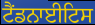
ਟੈਂਡਨਾਈਟਿਸ